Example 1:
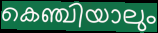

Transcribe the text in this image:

കെഞ്ചിയാലും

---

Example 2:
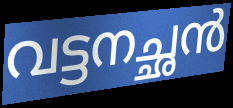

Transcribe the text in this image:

വട്ടനച്ഛൻ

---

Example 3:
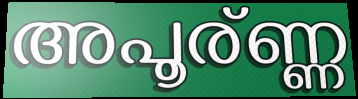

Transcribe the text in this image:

അപൂര്ണ്ണ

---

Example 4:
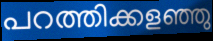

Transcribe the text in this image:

പറത്തിക്കളഞ്ഞു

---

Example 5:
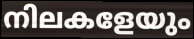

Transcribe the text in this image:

നിലകളേയും